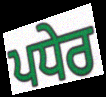
ਪਧੇਰ